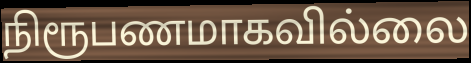
நிரூபணமாகவில்லை